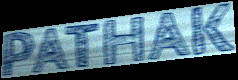
PATHAK